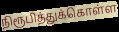
நிரூபித்துக்கொள்ள